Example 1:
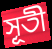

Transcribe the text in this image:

সূতী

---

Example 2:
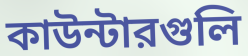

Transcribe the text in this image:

কাউন্টারগুলি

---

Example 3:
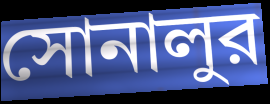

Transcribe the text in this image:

সোনালুর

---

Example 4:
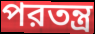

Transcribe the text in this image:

পরতন্ত্র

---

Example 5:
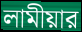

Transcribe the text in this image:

লামীয়ার